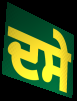
ਦਸੇ